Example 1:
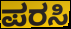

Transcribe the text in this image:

ಪರಸಿ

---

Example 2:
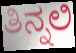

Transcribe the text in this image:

ತಿನ್ನಲಿ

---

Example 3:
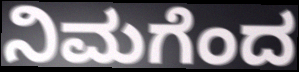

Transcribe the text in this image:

ನಿಮಗೆಂದ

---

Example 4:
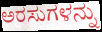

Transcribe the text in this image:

ಅರಸುಗಳನ್ನು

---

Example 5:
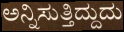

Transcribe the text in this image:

ಅನ್ನಿಸುತ್ತಿದ್ದುದು